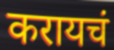
करायचं